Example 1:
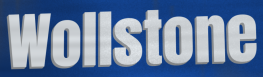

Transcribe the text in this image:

Wollstone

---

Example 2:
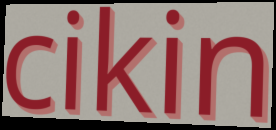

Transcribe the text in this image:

cikin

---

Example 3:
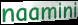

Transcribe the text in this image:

naamini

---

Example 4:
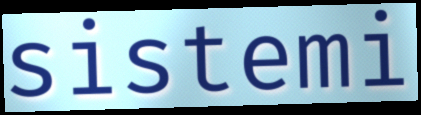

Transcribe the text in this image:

sistemi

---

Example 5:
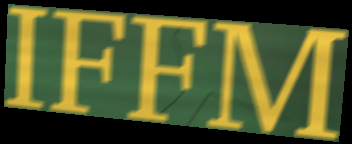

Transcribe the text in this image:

IFFM